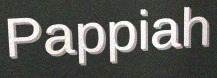
Pappiah